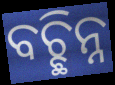
ବଚ୍ଛିନ୍ନ